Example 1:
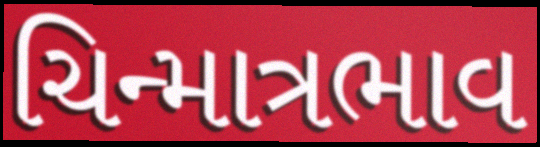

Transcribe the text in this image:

ચિન્માત્રભાવ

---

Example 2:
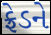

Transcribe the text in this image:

ફ્રેડને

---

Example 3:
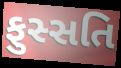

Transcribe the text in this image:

ફુસ્સતિ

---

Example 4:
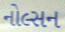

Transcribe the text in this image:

નોલ્સન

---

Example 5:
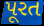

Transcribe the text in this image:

પૂરત